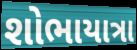
શોભાયાત્રા